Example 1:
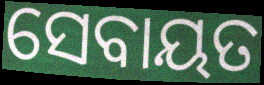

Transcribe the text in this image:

ସେବାୟତ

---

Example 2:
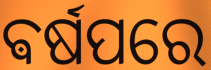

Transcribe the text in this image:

ଵର୍ଷପରେ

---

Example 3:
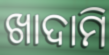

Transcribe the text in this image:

ଖାଦାମି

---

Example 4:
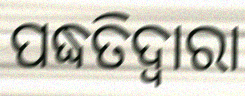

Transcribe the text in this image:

ପଦ୍ଧତିଦ୍ଵାରା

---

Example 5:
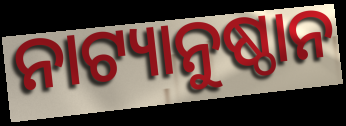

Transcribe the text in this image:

ନାଟ୍ୟାନୁଷ୍ଠାନ